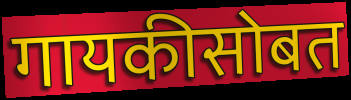
गायकीसोबत